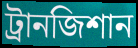
ট্রানজিশান